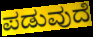
ಪಡುವುದೆ